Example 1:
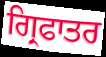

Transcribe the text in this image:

ਗ੍ਰਿਫਾਤਰ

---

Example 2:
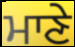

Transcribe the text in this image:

ਮਾਣੇ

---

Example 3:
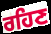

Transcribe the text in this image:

ਰਹਿਣ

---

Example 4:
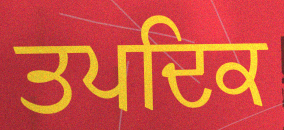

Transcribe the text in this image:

ਤਪਦਿਕ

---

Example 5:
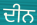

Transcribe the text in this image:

ਦੀਨ